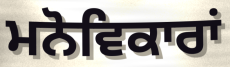
ਮਨੋਵਿਕਾਰਾਂ